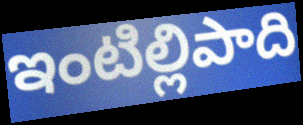
ఇంటిల్లిపాది